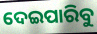
ଦେଇପାରିବୁ